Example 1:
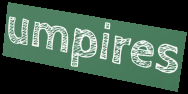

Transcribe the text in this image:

umpires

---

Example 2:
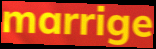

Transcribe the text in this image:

marrige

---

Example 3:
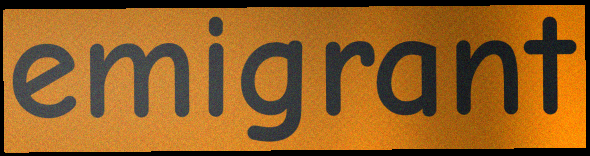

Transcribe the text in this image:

emigrant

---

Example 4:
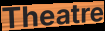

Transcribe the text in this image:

Theatre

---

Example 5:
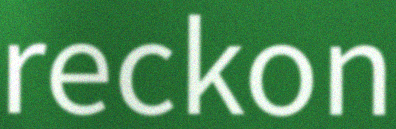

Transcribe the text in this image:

reckon